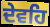
ਦੇਵਹਿ